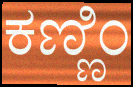
ಕಣ್ಣಿಂ